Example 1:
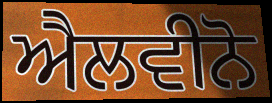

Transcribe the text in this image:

ਐਲਵੀਨੋ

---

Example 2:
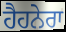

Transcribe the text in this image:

ਹੈਹਨੇਰਾ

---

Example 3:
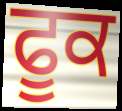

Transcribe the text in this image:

ਫੂਕ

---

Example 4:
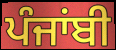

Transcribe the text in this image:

ਪੰਜਾਂਬੀ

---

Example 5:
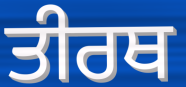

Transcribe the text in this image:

ਤੀਰਥ